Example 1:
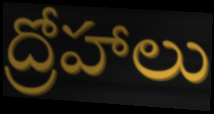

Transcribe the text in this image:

ద్రోహాలు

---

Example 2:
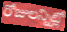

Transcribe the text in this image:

రోజులన్నిట్లో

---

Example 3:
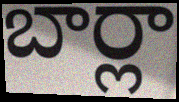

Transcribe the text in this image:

బార్లా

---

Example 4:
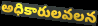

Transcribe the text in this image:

అధికారులవలన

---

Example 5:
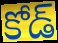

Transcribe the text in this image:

కోడ్